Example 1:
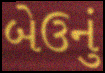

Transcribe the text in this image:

બેઉનું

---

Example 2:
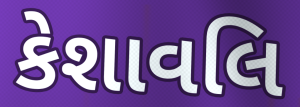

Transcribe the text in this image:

કેશાવલિ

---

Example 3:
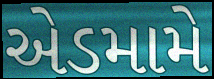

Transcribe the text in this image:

એડમામે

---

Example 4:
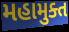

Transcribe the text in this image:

મહામુક્ત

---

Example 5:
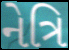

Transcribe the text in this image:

નેત્રિ